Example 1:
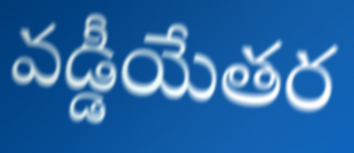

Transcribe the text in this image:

వడ్డీయేతర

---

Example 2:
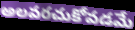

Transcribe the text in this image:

అలవరచుకోవడమే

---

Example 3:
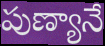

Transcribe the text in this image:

పుణ్యానే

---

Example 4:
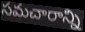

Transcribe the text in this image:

సమచారాన్ని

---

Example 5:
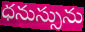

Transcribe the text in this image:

ధనుస్సును